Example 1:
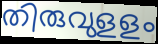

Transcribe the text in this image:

തിരുവുളളം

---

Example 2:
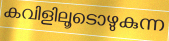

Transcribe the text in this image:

കവിളിലൂടൊഴുകുന്ന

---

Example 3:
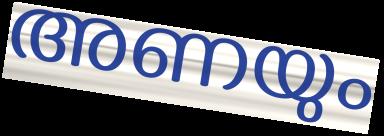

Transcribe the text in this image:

അണയും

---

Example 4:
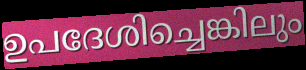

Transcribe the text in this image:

ഉപദേശിച്ചെങ്കിലും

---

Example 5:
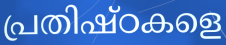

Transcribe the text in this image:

പ്രതിഷ്ഠകളെ